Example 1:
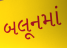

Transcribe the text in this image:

બલૂનમાં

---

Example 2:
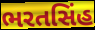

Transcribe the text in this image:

ભરતસિંહ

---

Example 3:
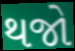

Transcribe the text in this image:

થજો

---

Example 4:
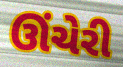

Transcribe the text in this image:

ઊંચેરી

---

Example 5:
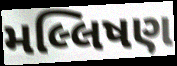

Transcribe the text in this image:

મલ્લિષણ